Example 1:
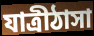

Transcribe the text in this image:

যাত্রীঠাসা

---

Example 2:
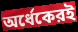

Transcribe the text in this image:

অর্ধেকেরই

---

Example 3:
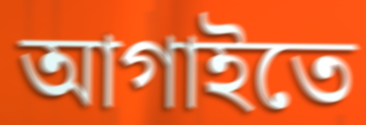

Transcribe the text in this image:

আগাইতে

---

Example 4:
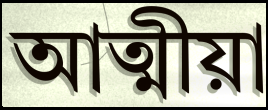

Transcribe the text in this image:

আত্মীয়া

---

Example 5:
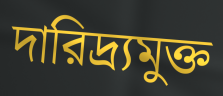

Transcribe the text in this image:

দারিদ্র্যমুক্ত